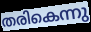
തരികെന്നു